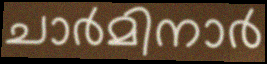
ചാർമിനാർ